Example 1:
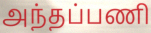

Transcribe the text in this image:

அந்தப்பணி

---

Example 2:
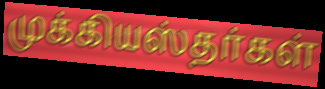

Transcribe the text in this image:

முக்கியஸ்தர்கள்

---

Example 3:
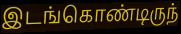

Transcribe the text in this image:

இடங்கொண்டிருந்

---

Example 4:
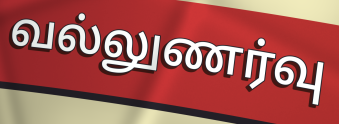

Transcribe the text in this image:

வல்லுணர்வு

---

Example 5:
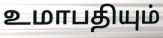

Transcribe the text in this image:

உமாபதியும்